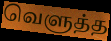
வெளுத்த